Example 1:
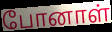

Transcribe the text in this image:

போனாள்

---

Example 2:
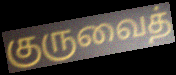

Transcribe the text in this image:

குருவைத்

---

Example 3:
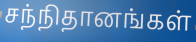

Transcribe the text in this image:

சந்நிதானங்கள்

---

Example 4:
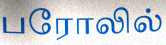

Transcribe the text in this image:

பரோலில்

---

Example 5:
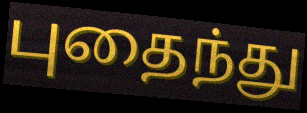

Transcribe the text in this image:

புதைந்து